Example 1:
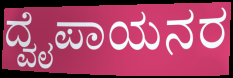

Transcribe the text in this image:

ದ್ವೈಪಾಯನರ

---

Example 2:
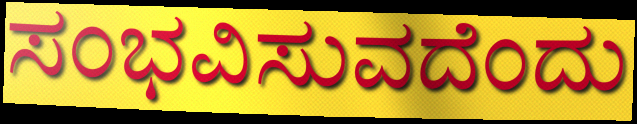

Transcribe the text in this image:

ಸಂಭವಿಸುವದೆಂದು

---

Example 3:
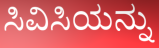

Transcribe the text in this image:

ಸಿವಿಸಿಯನ್ನು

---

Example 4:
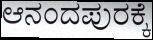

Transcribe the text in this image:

ಆನಂದಪುರಕ್ಕೆ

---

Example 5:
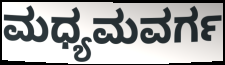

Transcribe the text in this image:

ಮಧ್ಯಮವರ್ಗ